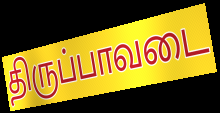
திருப்பாவடை